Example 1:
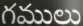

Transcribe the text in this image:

గములు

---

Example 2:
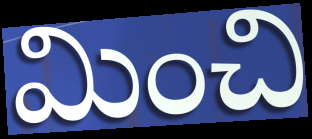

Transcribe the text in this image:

మించి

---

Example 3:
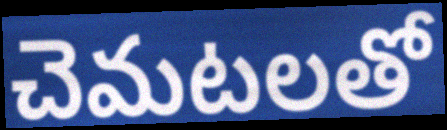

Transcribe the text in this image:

చెమటలతో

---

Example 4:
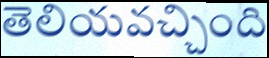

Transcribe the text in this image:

తెలియవచ్చింది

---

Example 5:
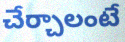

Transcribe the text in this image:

చేర్చాలంటే